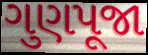
ગુણપૂજા